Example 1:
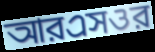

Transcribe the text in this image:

আরএসওর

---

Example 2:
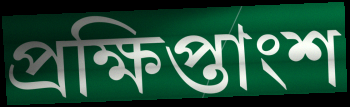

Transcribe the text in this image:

প্রক্ষিপ্তাংশ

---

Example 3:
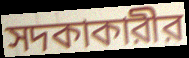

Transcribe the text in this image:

সদকাকারীর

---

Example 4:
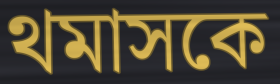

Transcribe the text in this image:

থমাসকে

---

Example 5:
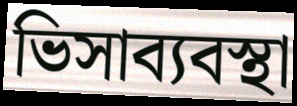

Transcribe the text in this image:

ভিসাব্যবস্থা